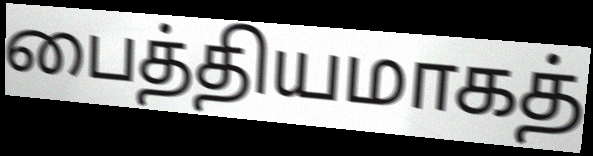
பைத்தியமாகத்